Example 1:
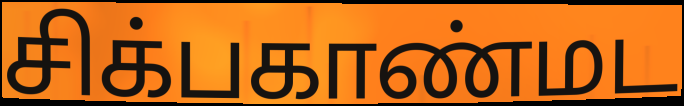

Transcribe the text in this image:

சிக்பகாண்மட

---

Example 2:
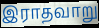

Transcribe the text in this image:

இராதவாறு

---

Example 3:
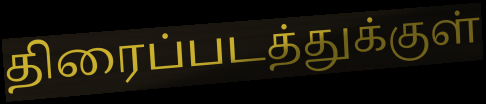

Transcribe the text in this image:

திரைப்படத்துக்குள்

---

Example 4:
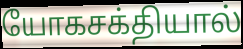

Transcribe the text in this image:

யோகசக்தியால்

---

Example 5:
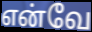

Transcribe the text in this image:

என்வே